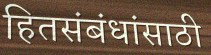
हितसंबंधांसाठी